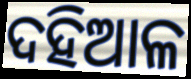
ଦହିଆଳ